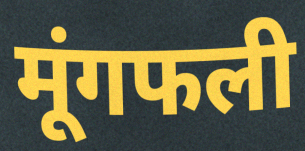
मूंगफली